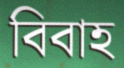
বিবাহ